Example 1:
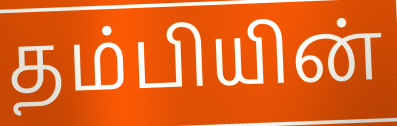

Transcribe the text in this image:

தம்பியின்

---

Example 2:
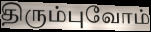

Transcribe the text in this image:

திரும்புவோம்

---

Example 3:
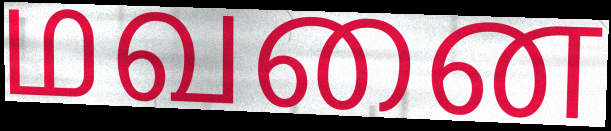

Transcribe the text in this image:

மவனை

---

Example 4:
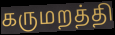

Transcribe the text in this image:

கருமறத்தி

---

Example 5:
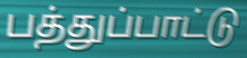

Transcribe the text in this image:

பத்துப்பாட்டு